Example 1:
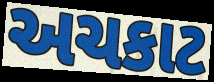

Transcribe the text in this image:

અચકાટ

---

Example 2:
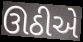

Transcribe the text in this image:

ઊઠીએ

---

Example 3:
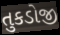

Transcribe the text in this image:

તુકડોજી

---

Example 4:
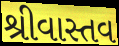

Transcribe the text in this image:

શ્રીવાસ્તવ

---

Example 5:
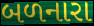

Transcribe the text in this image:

બળનારા